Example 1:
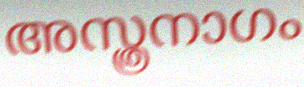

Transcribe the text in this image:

അസ്ത്രനാഗം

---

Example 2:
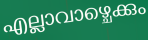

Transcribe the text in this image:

എല്ലാവാഴ്ചെക്കും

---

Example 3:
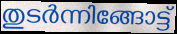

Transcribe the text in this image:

തുടർന്നിങ്ങോട്ട്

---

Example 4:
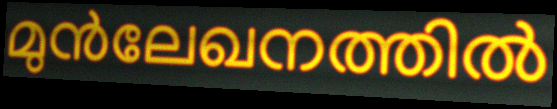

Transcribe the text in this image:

മുൻലേഖനത്തിൽ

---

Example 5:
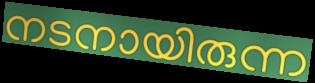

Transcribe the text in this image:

നടനായിരുന്ന